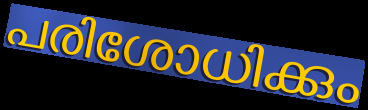
പരിശോധിക്കും